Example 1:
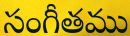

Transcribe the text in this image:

సంగీతము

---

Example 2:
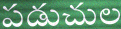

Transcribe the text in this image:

పడుచుల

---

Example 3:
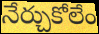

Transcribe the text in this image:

నేర్చుకోలేం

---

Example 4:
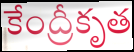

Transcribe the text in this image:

కేంద్రీకృత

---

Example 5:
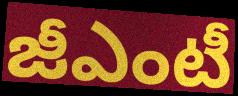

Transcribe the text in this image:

జీఎంటీ